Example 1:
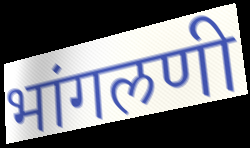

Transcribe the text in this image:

भांगलणी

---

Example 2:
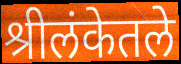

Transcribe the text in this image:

श्रीलंकेतले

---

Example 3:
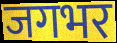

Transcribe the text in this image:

जगभर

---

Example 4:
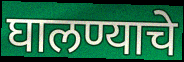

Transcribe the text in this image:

घालण्याचे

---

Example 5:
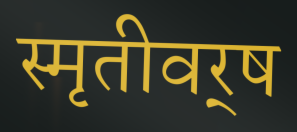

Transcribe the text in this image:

स्मृतीवर्ष